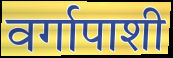
वर्गापाशी